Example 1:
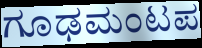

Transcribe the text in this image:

ಗೂಢಮಂಟಪ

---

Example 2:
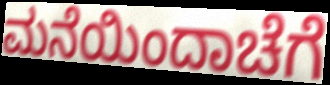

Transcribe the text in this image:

ಮನೆಯಿಂದಾಚೆಗೆ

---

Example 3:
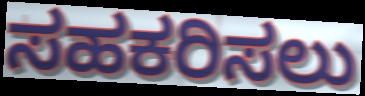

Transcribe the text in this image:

ಸಹಕರಿಸಲು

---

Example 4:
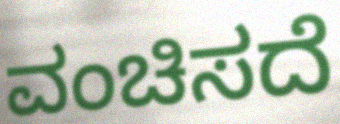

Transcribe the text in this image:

ವಂಚಿಸದೆ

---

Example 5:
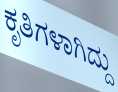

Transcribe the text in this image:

ಕೃತಿಗಳಾಗಿದ್ದು